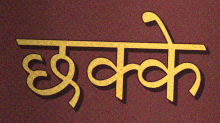
छक्के